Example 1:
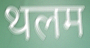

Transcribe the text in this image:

थलम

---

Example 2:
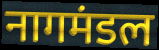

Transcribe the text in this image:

नागमंडल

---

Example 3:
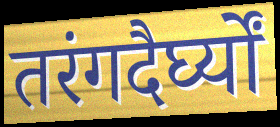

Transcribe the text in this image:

तरंगदैर्घ्यों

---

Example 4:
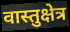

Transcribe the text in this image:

वास्तुक्षेत्र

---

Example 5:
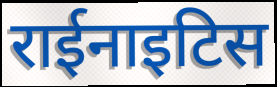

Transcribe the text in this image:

राईनाइटिस